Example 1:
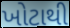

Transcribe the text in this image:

ખોટાથી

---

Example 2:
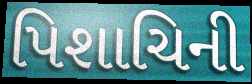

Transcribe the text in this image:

પિશાચિની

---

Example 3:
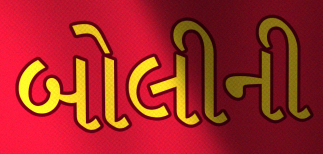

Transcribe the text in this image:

બોલીની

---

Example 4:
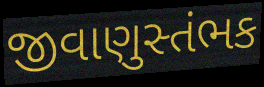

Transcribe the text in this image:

જીવાણુસ્તંભક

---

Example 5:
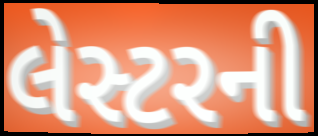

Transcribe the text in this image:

લેસ્ટરની